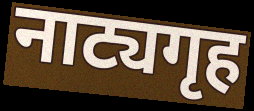
नाट्यगृह